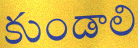
కుండాలి